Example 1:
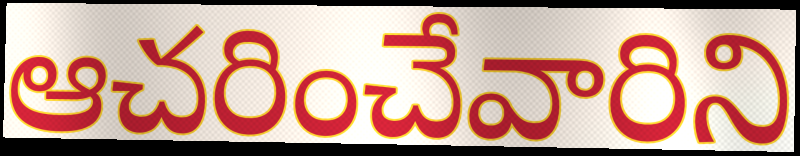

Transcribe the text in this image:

ఆచరించేవారిని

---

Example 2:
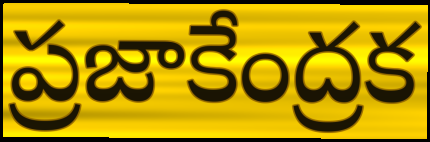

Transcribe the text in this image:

ప్రజాకేంద్రక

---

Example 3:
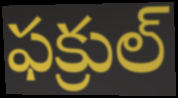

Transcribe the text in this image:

ఫక్రుల్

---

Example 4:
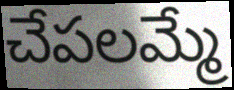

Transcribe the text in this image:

చేపలమ్మే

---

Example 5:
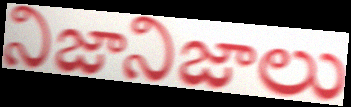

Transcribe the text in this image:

నిజానిజాలు